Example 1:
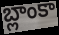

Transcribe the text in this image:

బ్లాంకా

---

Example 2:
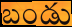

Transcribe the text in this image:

బండు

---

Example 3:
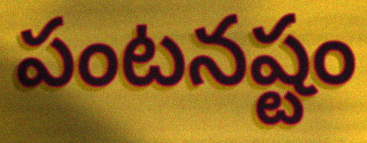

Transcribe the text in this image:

పంటనష్టం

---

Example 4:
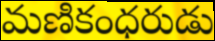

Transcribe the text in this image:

మణికంధరుడు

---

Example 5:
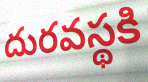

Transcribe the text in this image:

దురవస్థకి